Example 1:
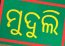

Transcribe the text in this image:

ମୁଦୁଲି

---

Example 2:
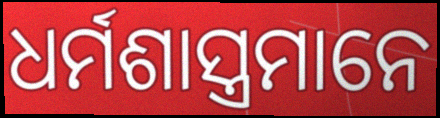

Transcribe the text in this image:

ଧର୍ମଶାସ୍ତ୍ରମାନେ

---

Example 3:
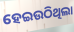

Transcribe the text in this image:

ହେଇଉଠିଥିଲା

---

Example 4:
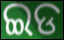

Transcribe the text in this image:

ଇଡ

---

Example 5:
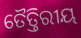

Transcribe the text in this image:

ତୈତ୍ତିରୀୟ